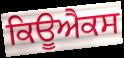
ਕਿਊਐਕਸ